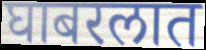
घाबरलात